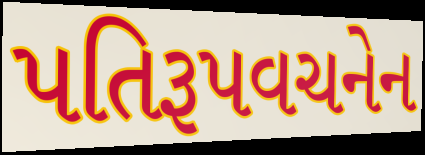
પતિરૂપવચનેન